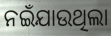
ନଇଁଯାଉଥିଲା